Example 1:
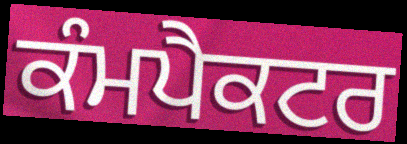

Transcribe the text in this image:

ਕੰਮਪੈਕਟਰ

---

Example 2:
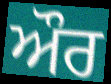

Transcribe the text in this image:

ਔਰ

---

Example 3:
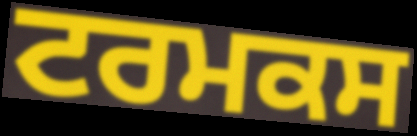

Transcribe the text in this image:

ਟਰਮਕਸ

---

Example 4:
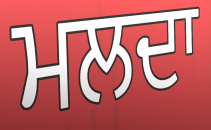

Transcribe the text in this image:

ਮਲਦਾ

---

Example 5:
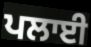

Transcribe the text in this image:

ਪਲਾਈ